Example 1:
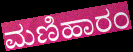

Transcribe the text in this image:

ಮಣಿಹಾರಂ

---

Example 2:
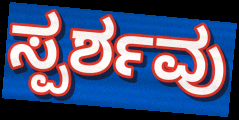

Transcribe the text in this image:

ಸ್ಪರ್ಶವು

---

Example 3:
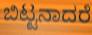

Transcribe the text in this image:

ಬಿಟ್ಟನಾದರೆ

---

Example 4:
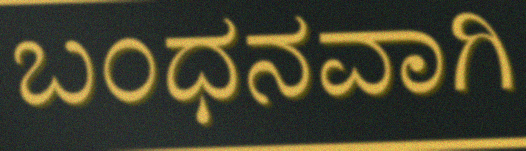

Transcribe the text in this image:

ಬಂಧನವಾಗಿ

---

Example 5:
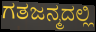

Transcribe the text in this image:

ಗತಜನ್ಮದಲ್ಲಿ